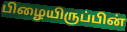
பிழையிருப்பின்